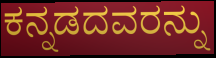
ಕನ್ನಡದವರನ್ನು